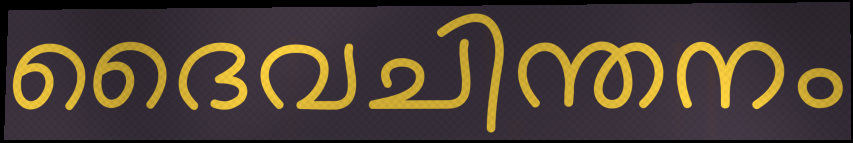
ദൈവചിന്തനം